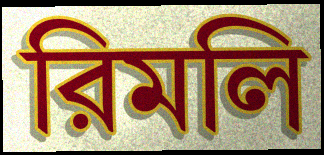
রিমলি